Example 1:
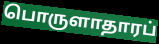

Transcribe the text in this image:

பொருளாதாரப்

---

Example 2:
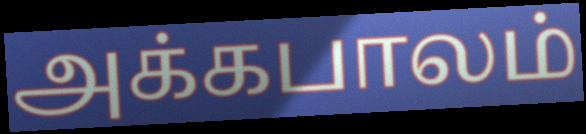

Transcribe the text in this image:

அக்கபாலம்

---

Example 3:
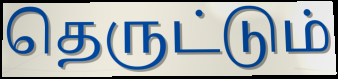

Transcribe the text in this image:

தெருட்டும்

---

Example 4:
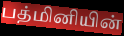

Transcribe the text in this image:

பத்மினியின்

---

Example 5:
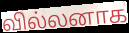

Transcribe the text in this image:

வில்லனாக